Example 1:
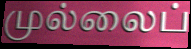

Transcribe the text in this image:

முல்லைப்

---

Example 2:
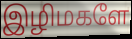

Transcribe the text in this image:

இழிமகளே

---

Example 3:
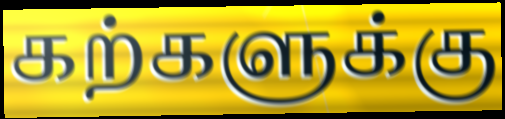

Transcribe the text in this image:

கற்களுக்கு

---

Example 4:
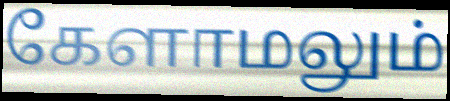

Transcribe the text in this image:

கேளாமலும்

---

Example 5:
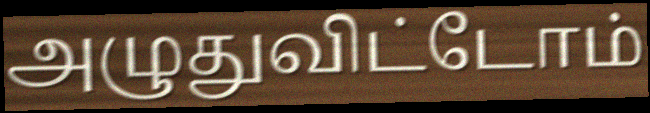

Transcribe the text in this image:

அழுதுவிட்டோம்